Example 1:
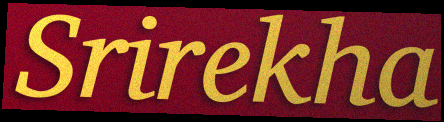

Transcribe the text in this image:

Srirekha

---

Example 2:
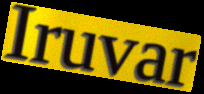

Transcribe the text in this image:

Iruvar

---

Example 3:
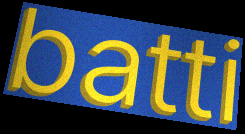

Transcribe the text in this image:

batti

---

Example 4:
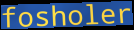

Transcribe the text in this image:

fosholer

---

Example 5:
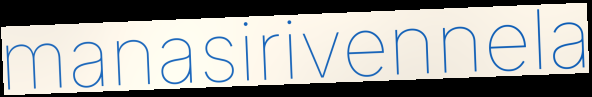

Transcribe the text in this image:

manasirivennela